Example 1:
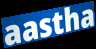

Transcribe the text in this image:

aastha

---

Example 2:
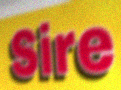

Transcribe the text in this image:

Sire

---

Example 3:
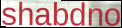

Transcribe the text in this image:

shabdno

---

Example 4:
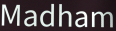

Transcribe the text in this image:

Madham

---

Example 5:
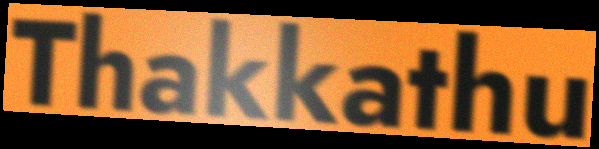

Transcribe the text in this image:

Thakkathu